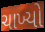
ચાખ્યો